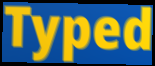
Typed